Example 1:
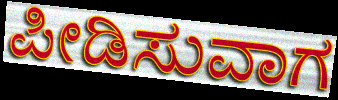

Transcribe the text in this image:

ಪೀಡಿಸುವಾಗ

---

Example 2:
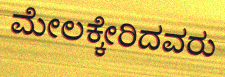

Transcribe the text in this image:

ಮೇಲಕ್ಕೇರಿದವರು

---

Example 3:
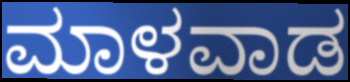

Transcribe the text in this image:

ಮಾಳವಾಡ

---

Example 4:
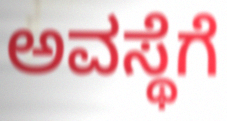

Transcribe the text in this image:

ಅವಸ್ಥೆಗೆ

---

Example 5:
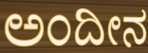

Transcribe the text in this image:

ಅಂದೀನ